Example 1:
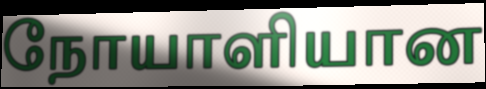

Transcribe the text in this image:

நோயாளியான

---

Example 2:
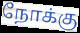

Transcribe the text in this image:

நோக்கு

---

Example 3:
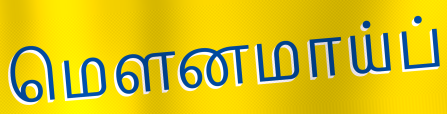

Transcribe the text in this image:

மௌனமாய்ப்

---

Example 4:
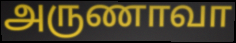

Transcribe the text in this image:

அருணாவா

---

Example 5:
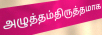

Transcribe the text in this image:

அழுத்தம்திருத்தமாக